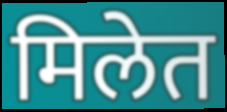
मिलेत